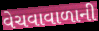
વેચવાવાળાની